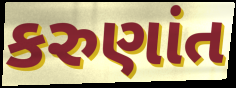
કરુણાંત